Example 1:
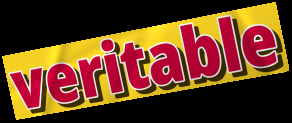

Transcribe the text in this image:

veritable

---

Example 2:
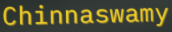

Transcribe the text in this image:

Chinnaswamy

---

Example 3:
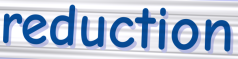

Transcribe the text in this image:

reduction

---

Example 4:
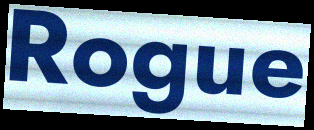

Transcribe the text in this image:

Rogue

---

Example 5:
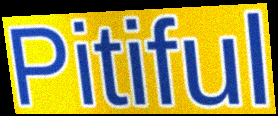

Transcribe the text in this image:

Pitiful